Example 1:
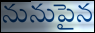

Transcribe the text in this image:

నునుపైన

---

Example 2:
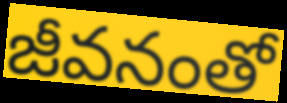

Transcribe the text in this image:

జీవనంతో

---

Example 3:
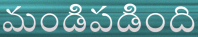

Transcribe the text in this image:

మండిపడింది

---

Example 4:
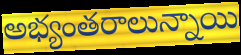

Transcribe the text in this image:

అభ్యంతరాలున్నాయి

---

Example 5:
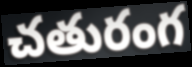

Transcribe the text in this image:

చతురంగ